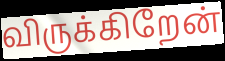
விருக்கிறேன்